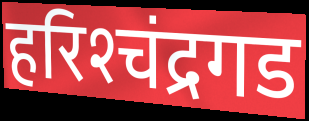
हरिश्चंद्रगड